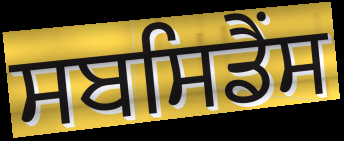
ਸਬਸਿਡੈਂਸ